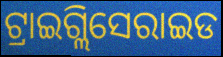
ଟ୍ରାଇଗ୍ଲିସେରାଇଡ